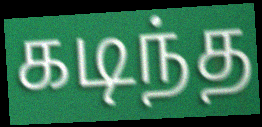
கடிந்த